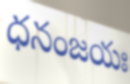
ధనంజయః